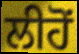
ਲੀਹੋਂ